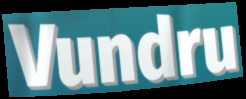
Vundru